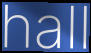
hall